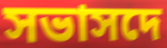
সভাসদে